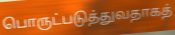
பொருட்படுத்துவதாகத்